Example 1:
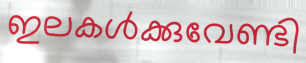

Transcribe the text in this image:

ഇലകൾക്കുവേണ്ടി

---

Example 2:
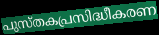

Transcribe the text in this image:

പുസ്തകപ്രസിദ്ധീകരണ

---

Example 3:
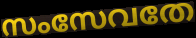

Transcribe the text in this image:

സംസേവതേ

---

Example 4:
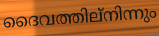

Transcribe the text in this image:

ദൈവത്തില്നിന്നും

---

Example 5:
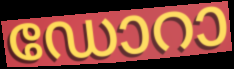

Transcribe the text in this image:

ഡോറാ